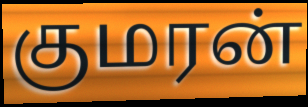
குமரன்